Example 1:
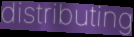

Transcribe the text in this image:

distributing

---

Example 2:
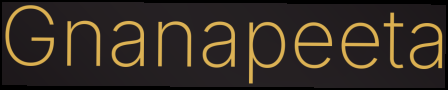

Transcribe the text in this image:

Gnanapeeta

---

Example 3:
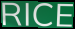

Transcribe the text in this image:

RICE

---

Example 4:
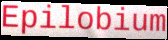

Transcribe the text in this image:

Epilobium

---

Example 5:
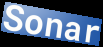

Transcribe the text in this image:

Sonar